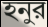
হনুর